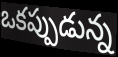
ఒకప్పుడున్న